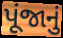
પૂંજાનું